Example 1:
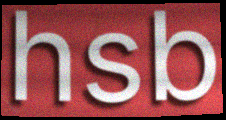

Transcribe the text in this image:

hsb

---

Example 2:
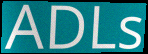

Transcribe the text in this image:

ADLs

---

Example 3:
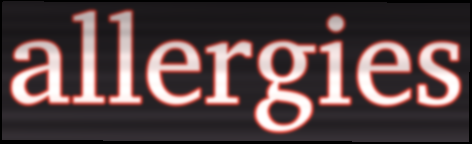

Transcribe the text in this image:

allergies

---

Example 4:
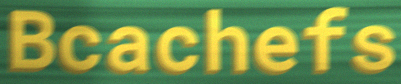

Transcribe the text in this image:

Bcachefs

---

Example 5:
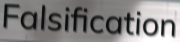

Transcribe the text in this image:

Falsification